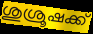
ശുശ്രൂഷക്ക്